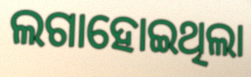
ଲଗାହୋଇଥିଲା